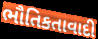
ભૌતિકતાવાદી